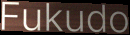
Fukudo